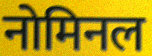
नोमिनल